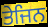
ਤੇਜਿਨ